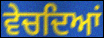
ਵੇਚਦਿਆਂ